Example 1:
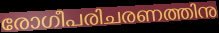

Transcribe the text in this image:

രോഗീപരിചരണത്തിനു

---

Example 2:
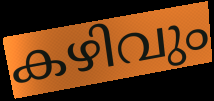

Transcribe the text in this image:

കഴിവും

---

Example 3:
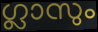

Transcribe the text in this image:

ഗ്ലാസും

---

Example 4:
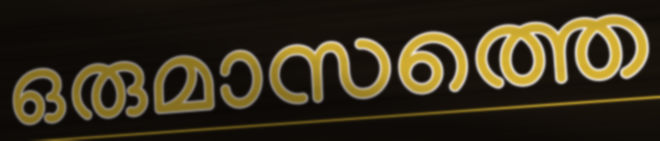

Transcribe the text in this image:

ഒരുമാസത്തെ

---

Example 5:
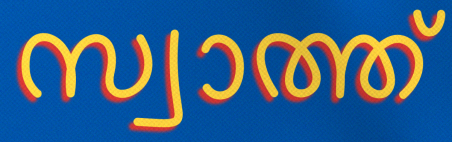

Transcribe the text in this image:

സ്വാത്ത്